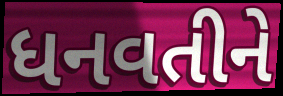
ધનવતીને